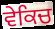
ਵੇਕਿਚ